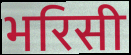
भरिसी